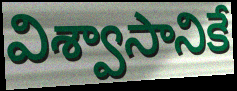
విశ్వాసానికే